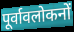
पूर्वावलोकनों